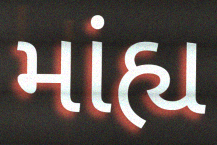
માંહ્ય